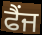
ਫੈਂਜ